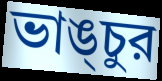
ভাঙ্চুর